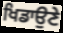
ਖਿਡਾਉਣੇ